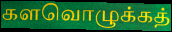
களவொழுக்கத்